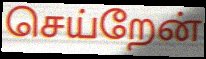
செய்றேன்